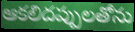
ఆకలిదప్పులతోను